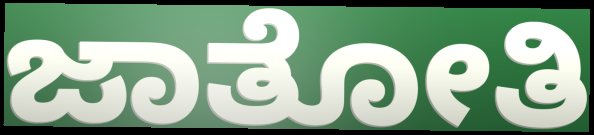
ಜಾತೋತಿ